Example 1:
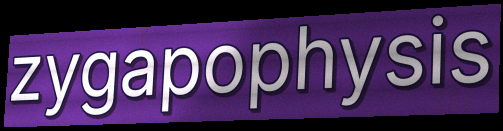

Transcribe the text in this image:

zygapophysis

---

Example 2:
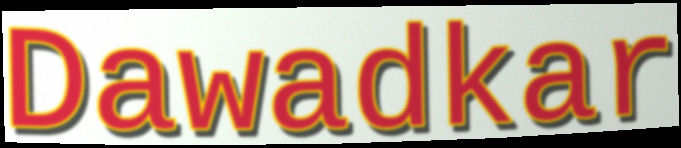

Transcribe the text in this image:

Dawadkar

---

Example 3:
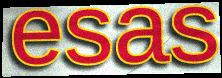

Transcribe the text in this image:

esas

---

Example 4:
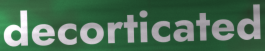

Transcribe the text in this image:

decorticated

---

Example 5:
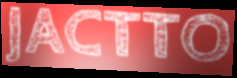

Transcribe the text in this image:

JACTTO